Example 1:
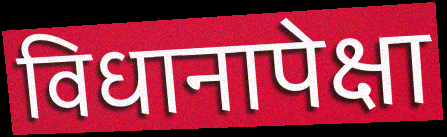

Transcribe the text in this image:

विधानापेक्षा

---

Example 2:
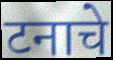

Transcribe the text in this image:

टनाचे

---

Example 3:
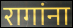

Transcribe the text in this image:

रागांना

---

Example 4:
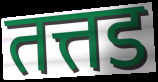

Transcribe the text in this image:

तत्तड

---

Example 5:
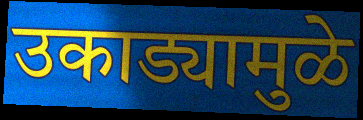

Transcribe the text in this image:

उकाड्यामुळे